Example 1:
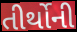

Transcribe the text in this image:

તીર્થોની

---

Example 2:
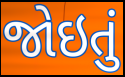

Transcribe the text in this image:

જોઇતું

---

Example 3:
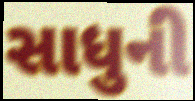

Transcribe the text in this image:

સાધુની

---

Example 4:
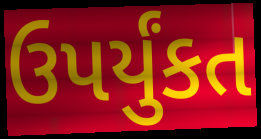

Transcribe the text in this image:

ઉપર્યુંકત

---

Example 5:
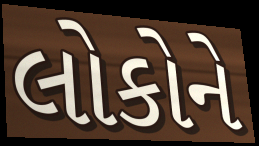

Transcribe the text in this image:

લોકોને